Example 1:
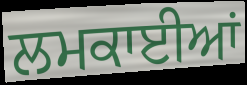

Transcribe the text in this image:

ਲਮਕਾਈਆਂ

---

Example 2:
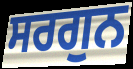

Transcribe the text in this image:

ਸਰਗੁਨ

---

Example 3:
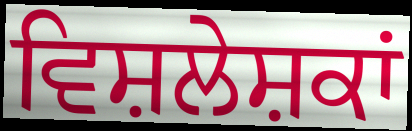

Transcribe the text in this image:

ਵਿਸ਼ਲੇਸ਼ਕਾਂ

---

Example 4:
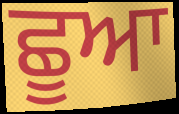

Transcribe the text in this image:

ਛੂਆ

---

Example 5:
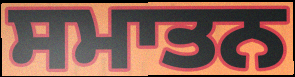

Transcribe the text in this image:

ਸਮਾਤਨ